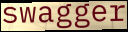
swagger